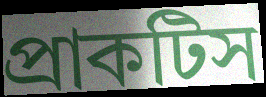
প্রাকটিস